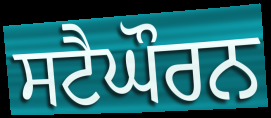
ਸਟੈਘੌਰਨ